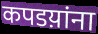
कपडय़ांना